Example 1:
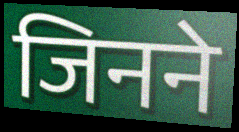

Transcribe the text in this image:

जिनने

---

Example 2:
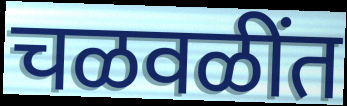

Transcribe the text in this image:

चळवळींत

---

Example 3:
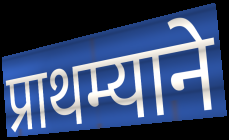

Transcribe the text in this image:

प्राथम्याने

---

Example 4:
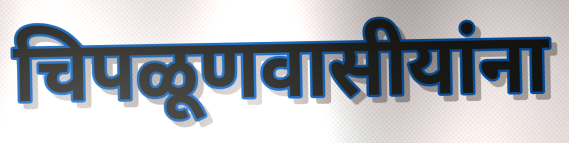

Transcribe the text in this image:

चिपळूणवासीयांना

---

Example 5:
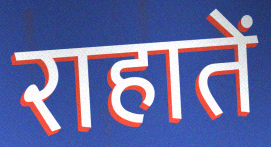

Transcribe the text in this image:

राहातें